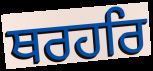
ਥਰਹਰਿ